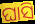
ଘାସି